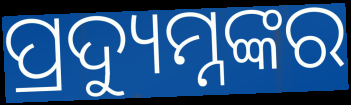
ପ୍ରଦ୍ୟୁମ୍ନଙ୍କର